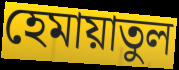
হেমায়াতুল